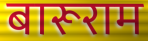
बारूराम